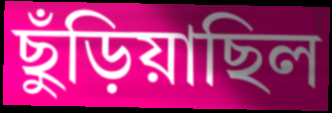
ছুঁড়িয়াছিল